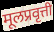
मूलप्रवृत्ती